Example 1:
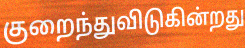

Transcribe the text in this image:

குறைந்துவிடுகின்றது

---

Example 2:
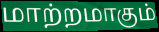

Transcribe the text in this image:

மாற்றமாகும்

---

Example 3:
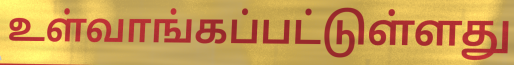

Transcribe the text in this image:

உள்வாங்கப்பட்டுள்ளது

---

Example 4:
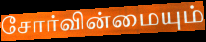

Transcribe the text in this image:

சோர்வின்மையும்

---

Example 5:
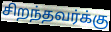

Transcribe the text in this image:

சிறந்தவர்க்கு